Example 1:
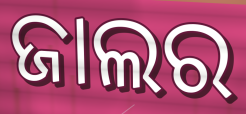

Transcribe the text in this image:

ଜାଲର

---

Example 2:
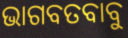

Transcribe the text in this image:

ଭାଗବତବାବୁ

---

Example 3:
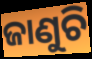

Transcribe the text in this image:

ଜାଣୁଚି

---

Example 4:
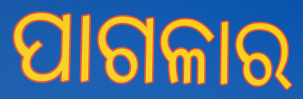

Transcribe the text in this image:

ପାଗଳାର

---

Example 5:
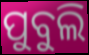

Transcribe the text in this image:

ପୁବୁଲି